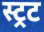
स्ट्रट